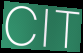
CIT